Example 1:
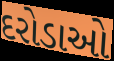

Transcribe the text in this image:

દરોડાઓ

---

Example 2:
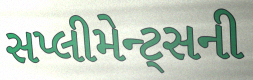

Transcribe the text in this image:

સપ્લીમેન્ટ્સની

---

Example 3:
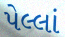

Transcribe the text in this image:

પેલ્લાં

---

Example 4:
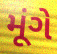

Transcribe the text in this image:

મૂંગે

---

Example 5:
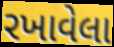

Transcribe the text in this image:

રખાવેલા